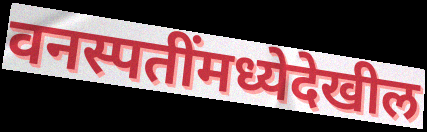
वनस्पतींमध्येदेखील